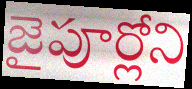
జైపూర్లోని